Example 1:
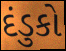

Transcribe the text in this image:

દંડુકો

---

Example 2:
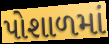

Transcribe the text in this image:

પોશાળમાં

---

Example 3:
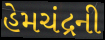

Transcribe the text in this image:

હેમચંદ્રની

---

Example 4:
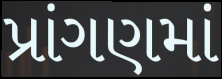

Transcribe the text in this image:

પ્રાંગણમાં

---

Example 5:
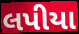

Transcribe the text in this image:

લપીયા